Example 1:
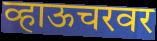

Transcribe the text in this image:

व्हाऊचरवर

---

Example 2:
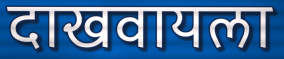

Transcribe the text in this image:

दाखवायला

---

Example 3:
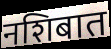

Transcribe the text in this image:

नशिबात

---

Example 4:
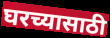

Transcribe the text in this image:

घरच्यासाठी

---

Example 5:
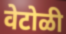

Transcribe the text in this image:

वेटोळी